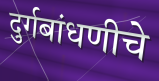
दुर्गबांधणीचे